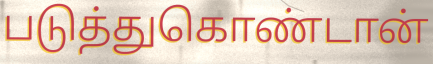
படுத்துகொண்டான்